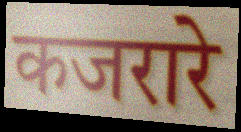
कजरारे